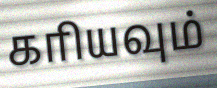
கரியவும்